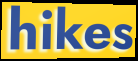
hikes